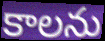
కాలను